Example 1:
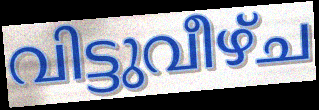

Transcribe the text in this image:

വിട്ടുവീഴ്ച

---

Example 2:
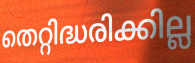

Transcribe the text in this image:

തെറ്റിദ്ധരിക്കില്ല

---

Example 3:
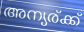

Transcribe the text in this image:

അന്യര്ക്ക്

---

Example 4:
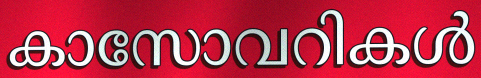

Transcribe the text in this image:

കാസോവറികൾ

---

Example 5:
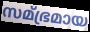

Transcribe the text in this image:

സമ്ഭ്രമായ